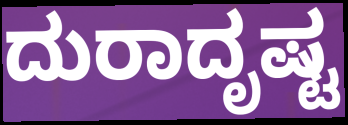
ದುರಾದೃಷ್ಟ